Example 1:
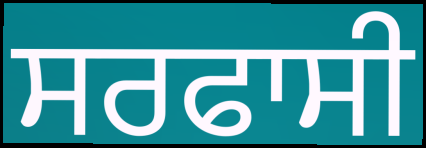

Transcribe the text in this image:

ਸਰਫਾਸੀ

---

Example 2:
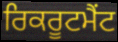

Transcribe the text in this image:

ਰਿਕਰੂਟਮੈਂਟ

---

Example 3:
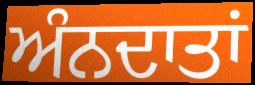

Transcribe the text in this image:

ਅੰਨਦਾਤਾਂ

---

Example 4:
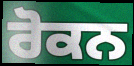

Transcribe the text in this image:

ਰੋਕਨ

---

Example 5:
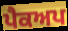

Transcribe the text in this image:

ਪੈਕਅਪ